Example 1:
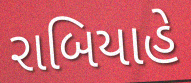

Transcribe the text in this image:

રાબિયાહે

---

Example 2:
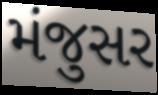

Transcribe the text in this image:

મંજુસર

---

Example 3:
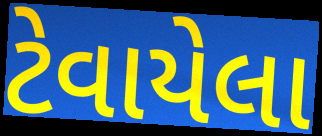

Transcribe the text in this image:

ટેવાયેલા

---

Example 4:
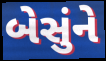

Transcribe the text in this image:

બેસુંને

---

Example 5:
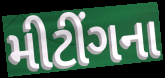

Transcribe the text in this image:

મીટીંગના